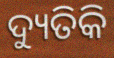
ଦ୍ୟୁତିକି